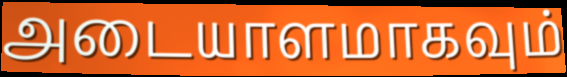
அடையாளமாகவும்